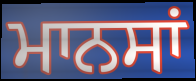
ਮਾਨਸਾਂ